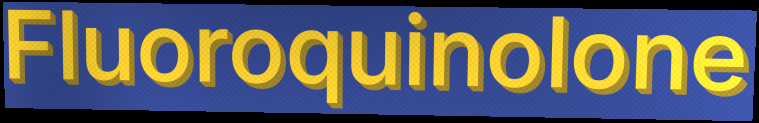
Fluoroquinolone